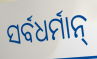
ସର୍ବଧର୍ମାନ୍